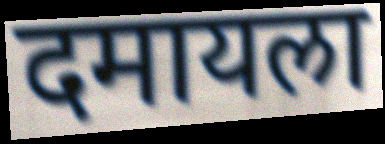
दमायला